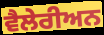
ਵੈਲੇਰੀਅਨ